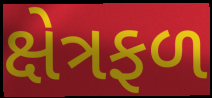
ક્ષેત્રફળ